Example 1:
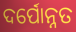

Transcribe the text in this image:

ଦର୍ପୋନ୍ନତ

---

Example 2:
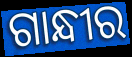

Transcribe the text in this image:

ଗାନ୍ଧୀର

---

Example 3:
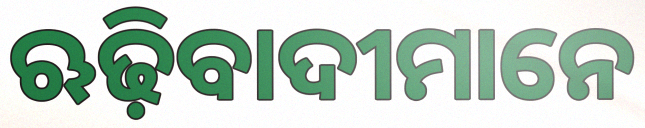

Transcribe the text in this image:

ଋଢ଼ିବାଦୀମାନେ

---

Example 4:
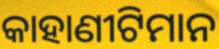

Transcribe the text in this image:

କାହାଣୀଟିମାନ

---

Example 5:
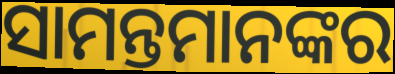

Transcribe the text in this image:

ସାମନ୍ତମାନଙ୍କର